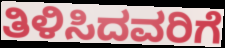
ತಿಳಿಸಿದವರಿಗೆ